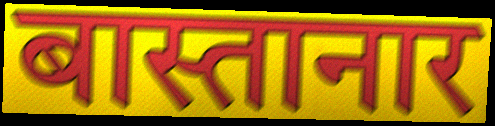
बास्तानार